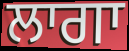
ਲਾਗਾ